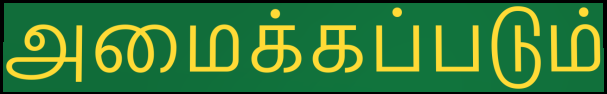
அமைக்கப்படும்